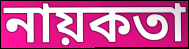
নায়কতা